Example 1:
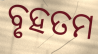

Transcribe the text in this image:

ବୃହତମ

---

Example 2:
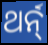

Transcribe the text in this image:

ଥର୍ନ୍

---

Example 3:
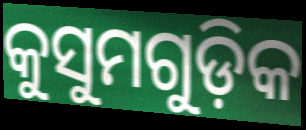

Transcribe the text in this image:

କୁସୁମଗୁଡ଼ିକ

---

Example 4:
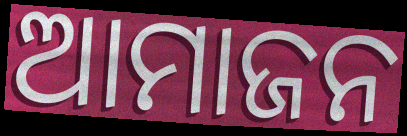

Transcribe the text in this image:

ଆମାଜନ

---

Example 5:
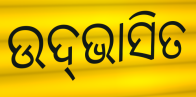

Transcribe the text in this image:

ଉଦ୍‍ଭାସିତ